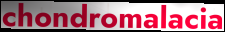
chondromalacia